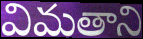
విమతాని